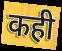
कही